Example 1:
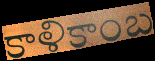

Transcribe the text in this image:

కాళికాంబ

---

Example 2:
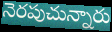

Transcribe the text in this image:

నెరపుచున్నారు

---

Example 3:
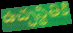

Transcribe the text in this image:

ఉచ్ఛస్థితికి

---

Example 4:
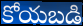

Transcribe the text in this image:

కోయబడి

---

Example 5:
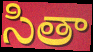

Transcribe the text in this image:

సితా